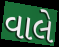
વાલે